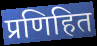
प्रणिहित